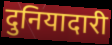
दुनियादारी